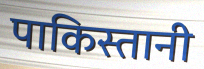
पाकिस्‍तानी